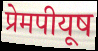
प्रेमपीयूष